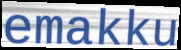
emakku